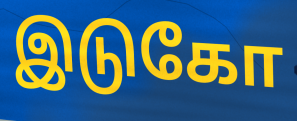
இடுகோ